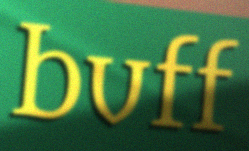
buff